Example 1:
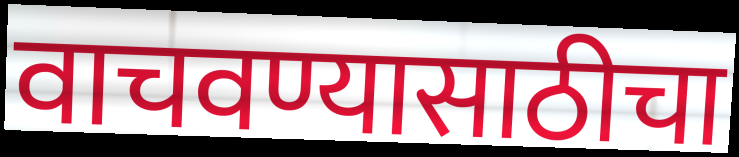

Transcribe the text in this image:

वाचवण्यासाठीचा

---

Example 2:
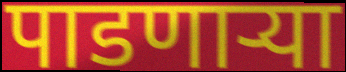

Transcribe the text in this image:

पाडणाऱ्या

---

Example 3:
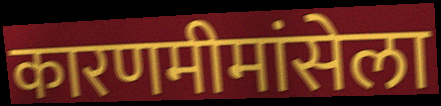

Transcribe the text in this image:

कारणमीमांसेला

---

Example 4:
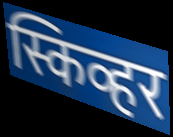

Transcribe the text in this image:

स्किव्हर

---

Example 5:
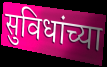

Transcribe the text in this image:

सुविधांच्या